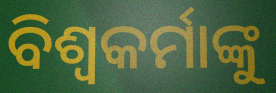
ବିଶ୍ଵକର୍ମାଙ୍କୁ